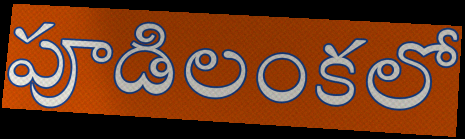
పూడిలంకలో